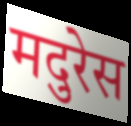
मदुरेस